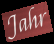
Jahr